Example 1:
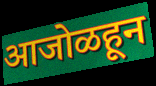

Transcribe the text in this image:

आजोळहून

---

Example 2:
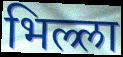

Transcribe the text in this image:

भिल्ला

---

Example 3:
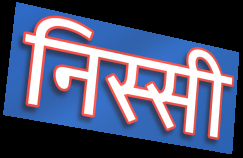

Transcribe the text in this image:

निस्सी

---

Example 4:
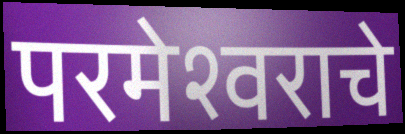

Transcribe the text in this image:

परमेश्वराचे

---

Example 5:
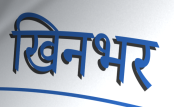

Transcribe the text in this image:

खिनभर